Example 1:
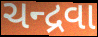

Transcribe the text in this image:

ચન્દ્રવા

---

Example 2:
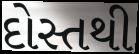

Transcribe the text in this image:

દોસ્તથી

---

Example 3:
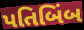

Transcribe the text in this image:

પતિબિંબ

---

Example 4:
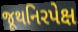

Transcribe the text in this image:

જૂથનિરપેક્ષ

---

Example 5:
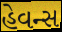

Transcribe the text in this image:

હેવન્સ